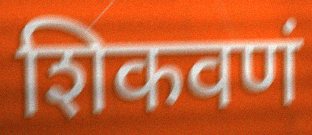
शिकवणं